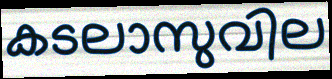
കടലാസുവില